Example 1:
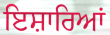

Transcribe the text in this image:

ਇਸ਼ਾਰਿਆਂ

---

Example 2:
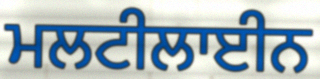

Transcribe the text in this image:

ਮਲਟੀਲਾਈਨ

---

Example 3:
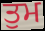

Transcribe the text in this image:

ਤੁਮ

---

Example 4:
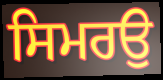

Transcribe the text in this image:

ਸਿਮਰਉ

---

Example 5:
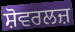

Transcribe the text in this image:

ਸ਼ੋਵਰਲਜ਼